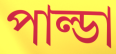
পাল্ডা